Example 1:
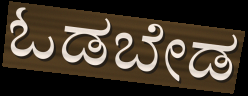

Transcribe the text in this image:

ಓಡಬೇಡ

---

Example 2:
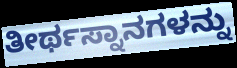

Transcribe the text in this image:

ತೀರ್ಥಸ್ನಾನಗಳನ್ನು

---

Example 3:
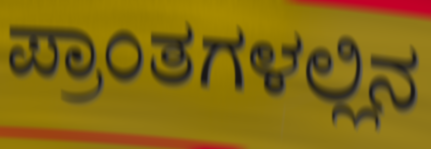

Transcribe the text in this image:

ಪ್ರಾಂತಗಳಲ್ಲಿನ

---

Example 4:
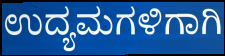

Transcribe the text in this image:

ಉದ್ಯಮಗಳಿಗಾಗಿ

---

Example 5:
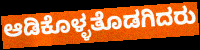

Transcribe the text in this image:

ಆಡಿಕೊಳ್ಳತೊಡಗಿದರು